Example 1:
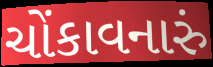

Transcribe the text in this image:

ચોંકાવનારું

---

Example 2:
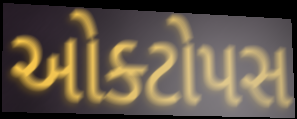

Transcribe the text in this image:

ઓક્ટોપસ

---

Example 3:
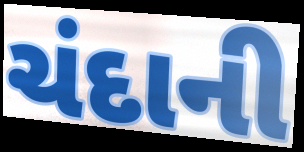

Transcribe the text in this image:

ચંદાની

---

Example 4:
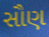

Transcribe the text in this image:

સૌણ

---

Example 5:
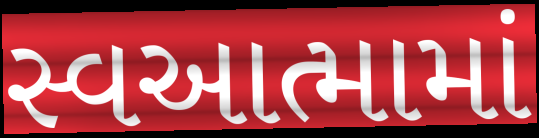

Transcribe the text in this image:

સ્વઆત્મામાં